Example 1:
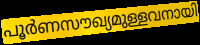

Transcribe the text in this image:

പൂർണസൗഖ്യമുള്ളവനായി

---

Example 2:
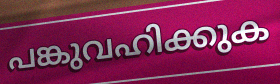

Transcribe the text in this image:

പങ്കുവഹിക്കുക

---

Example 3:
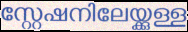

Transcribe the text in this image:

സ്റ്റേഷനിലേയ്ക്കുള്ള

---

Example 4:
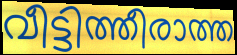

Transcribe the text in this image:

വീട്ടിത്തീരാത്ത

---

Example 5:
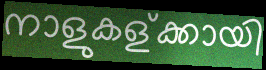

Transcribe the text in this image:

നാളുകള്ക്കായി